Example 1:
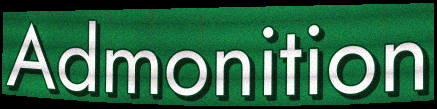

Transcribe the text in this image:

Admonition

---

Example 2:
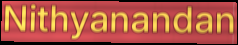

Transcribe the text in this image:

Nithyanandan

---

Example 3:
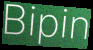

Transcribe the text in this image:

Bipin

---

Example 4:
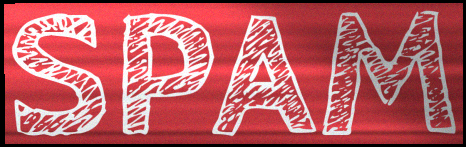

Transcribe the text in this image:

SPAM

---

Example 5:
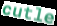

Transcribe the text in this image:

cutle